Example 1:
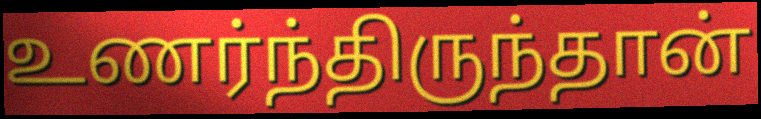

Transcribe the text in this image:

உணர்ந்திருந்தான்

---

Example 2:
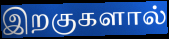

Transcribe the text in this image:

இறகுகளால்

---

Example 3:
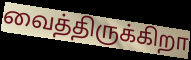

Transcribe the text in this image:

வைத்திருக்கிறா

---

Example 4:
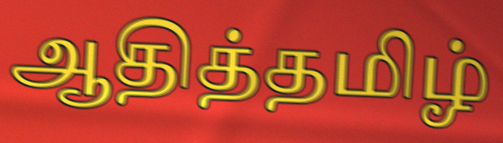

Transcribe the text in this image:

ஆதித்தமிழ்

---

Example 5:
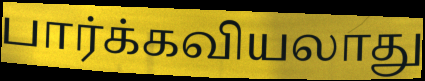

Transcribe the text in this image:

பார்க்கவியலாது